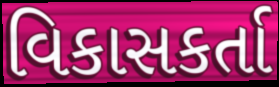
વિકાસકર્તા